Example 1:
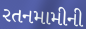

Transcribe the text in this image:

રતનમામીની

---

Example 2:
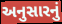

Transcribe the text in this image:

અનુસારનું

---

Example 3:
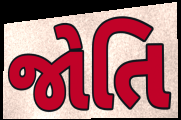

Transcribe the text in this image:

જોતિ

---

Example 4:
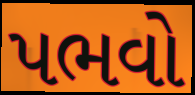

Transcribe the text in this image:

પભવો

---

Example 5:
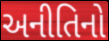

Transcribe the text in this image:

અનીતિનો